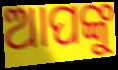
ଆପଙ୍କୁ